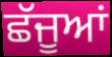
ਛੱਜੂਆਂ